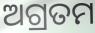
ଅଗ୍ରତମ